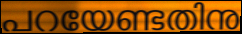
പറയേണ്ടതിനു